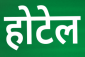
होटेल